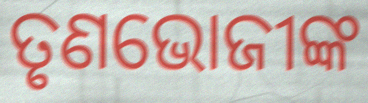
ତୃଣଭୋଜୀଙ୍କ